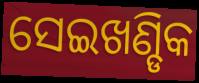
ସେଇଖଣ୍ଡିକ